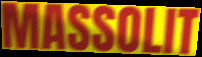
MASSOLIT